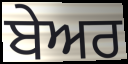
ਬੇਅਰ